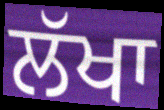
ਲੱਖਾ